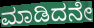
ಮಾಡಿದನೇ